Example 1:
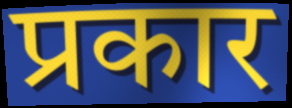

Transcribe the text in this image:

प्रकार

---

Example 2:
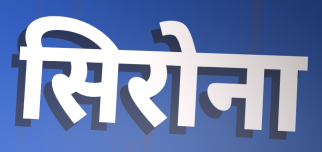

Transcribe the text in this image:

सिरोना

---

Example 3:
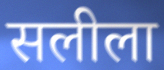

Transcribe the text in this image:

सलीला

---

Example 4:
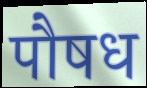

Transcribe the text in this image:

पौषध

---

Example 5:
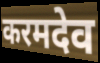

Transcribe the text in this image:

करमदेव